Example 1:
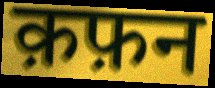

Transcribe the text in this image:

क़फ़न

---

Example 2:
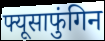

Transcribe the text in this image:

फ्यूसाफुंगिन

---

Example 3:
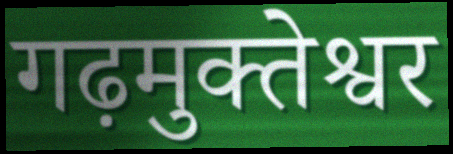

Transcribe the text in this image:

गढ़मुक्तेश्वर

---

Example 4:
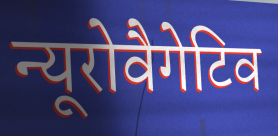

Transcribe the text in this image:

न्यूरोवैगेटिव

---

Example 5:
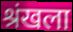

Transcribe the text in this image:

श्रंखला